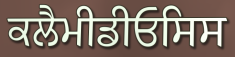
ਕਲੈਮੀਡੀਓਸਿਸ